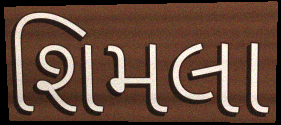
શિમલા